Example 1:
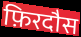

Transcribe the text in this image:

फ़िरदौस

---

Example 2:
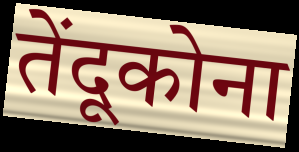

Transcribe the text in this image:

तेंदूकोना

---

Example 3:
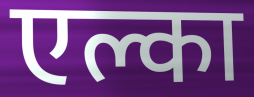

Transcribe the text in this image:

एल्का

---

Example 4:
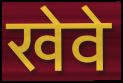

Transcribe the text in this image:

खेवे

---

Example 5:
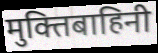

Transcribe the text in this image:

मुक्तिबाहिनी